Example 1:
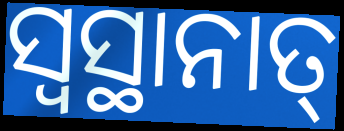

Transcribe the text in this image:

ସ୍ଵସ୍ଥାନାତ୍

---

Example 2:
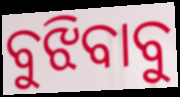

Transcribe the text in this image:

ବୁଝିବାବୁ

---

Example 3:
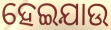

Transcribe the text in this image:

ହେଇଯାଉ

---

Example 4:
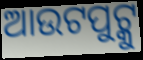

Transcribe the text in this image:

ଆଉଟପୁଟ୍କୁ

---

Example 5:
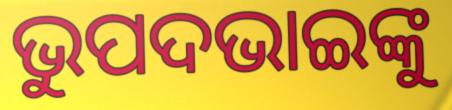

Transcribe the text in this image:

ଭୁପଦଭାଇଙ୍କୁ